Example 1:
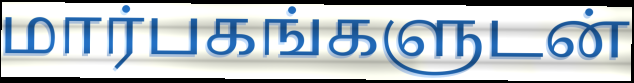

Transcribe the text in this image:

மார்பகங்களுடன்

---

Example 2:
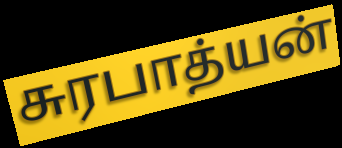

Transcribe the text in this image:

சுரபாத்யன்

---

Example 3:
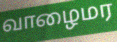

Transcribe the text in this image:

வாழைமர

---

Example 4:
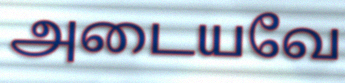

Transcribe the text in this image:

அடையவே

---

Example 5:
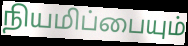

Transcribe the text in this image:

நியமிப்பையும்